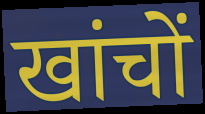
खांचों